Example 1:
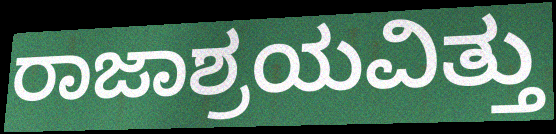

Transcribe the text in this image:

ರಾಜಾಶ್ರಯವಿತ್ತು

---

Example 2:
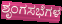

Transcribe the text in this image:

ಶೃಂಗಸಭೆಗಳ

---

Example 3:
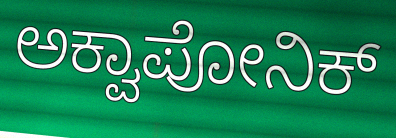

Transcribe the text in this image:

ಅಕ್ವಾಪೋನಿಕ್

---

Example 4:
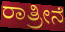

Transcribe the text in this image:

ರಾತ್ರೀನೆ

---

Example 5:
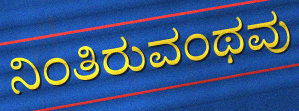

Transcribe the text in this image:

ನಿಂತಿರುವಂಥವು